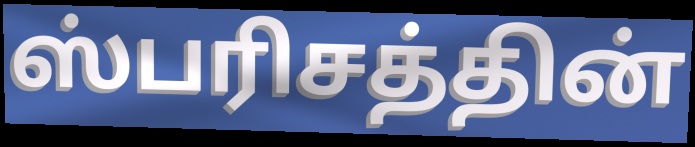
ஸ்பரிசத்தின்